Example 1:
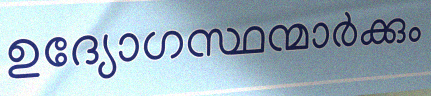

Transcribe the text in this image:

ഉദ്യോഗസ്ഥന്മാർക്കും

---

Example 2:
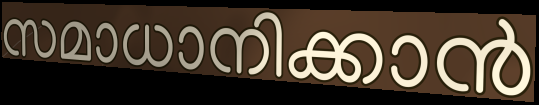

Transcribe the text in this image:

സമാധാനിക്കാൻ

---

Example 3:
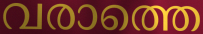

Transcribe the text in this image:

വരാത്തെ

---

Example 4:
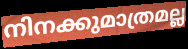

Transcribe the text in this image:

നിനക്കുമാത്രമല്ല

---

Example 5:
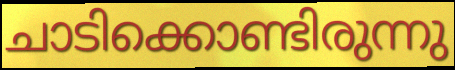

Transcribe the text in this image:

ചാടിക്കൊണ്ടിരുന്നു